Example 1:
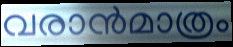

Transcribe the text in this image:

വരാൻമാത്രം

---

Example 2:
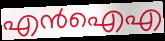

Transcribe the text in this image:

എൻഐഎ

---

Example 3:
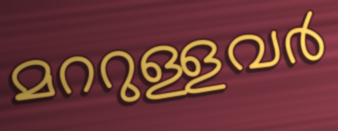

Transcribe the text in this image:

മററുള്ളവർ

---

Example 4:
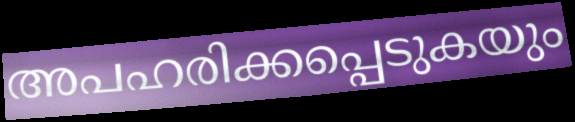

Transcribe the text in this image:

അപഹരിക്കപ്പെടുകയും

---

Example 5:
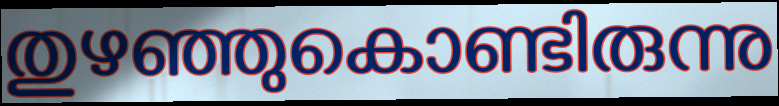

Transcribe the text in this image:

തുഴഞ്ഞുകൊണ്ടിരുന്നു